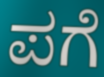
ಪಗೆ